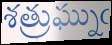
శత్రుఘ్నుఁ